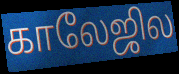
காலேஜில